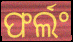
ଫର୍ଲଂ